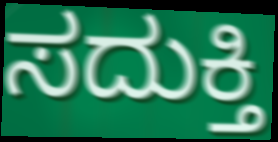
ಸದುಕ್ತಿ